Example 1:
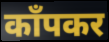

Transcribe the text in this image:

काँपकर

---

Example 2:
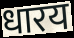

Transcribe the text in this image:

धारय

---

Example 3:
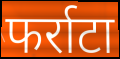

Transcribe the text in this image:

फर्राटा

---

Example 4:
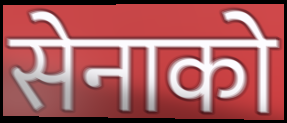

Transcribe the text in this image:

सेनाको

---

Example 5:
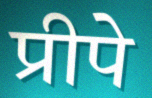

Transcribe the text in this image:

प्रीपे